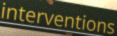
interventions